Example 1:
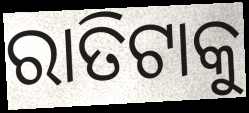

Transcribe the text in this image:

ରାତିଟାକୁ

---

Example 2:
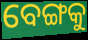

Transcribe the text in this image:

ବେଙ୍ଗକୁ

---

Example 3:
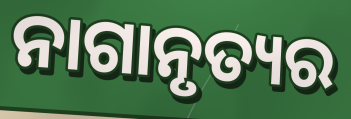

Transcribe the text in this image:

ନାଗାନୃତ୍ୟର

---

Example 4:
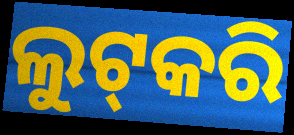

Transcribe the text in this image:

ଲୁଟ୍‍କରି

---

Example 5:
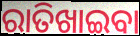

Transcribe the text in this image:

ରାତିଖାଇବା